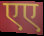
एए